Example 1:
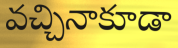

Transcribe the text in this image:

వచ్చినాకూడా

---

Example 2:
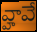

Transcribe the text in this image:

వ్హావే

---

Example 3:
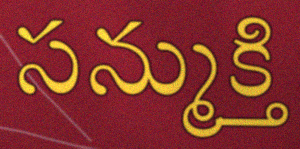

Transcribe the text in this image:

సన్ముక్తి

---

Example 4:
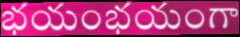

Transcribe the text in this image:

భయంభయంగా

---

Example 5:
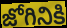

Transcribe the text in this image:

జోగినికి